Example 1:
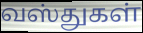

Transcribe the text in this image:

வஸ்துகள்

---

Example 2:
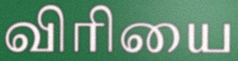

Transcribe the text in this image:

விரியை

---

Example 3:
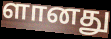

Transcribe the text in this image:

ளானது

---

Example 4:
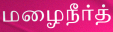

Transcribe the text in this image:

மழைநீர்த்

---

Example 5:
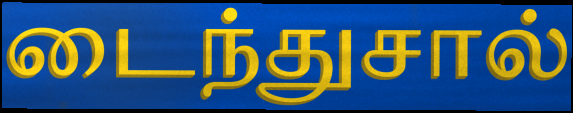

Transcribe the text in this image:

டைந்துசால்